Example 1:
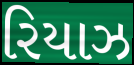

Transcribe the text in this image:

રિયાઝ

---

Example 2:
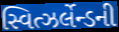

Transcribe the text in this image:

સ્વિત્ઝર્લેન્ડની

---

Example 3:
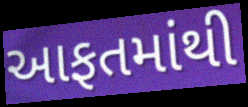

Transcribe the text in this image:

આફતમાંથી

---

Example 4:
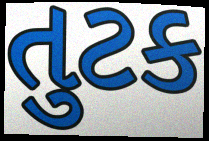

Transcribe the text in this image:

તુટક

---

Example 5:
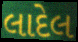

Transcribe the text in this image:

લાદેલ